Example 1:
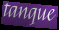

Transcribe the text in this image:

tanque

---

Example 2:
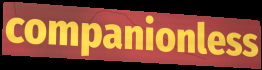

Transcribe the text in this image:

companionless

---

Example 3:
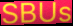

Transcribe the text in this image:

SBUs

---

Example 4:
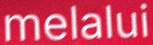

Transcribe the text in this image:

melalui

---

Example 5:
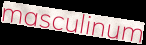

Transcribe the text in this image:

masculinum